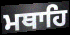
ਮਥਾਹਿ